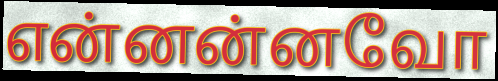
என்னன்னவோ